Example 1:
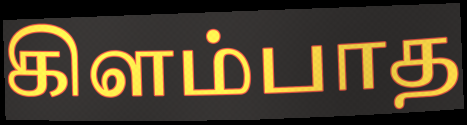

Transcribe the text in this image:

கிளம்பாத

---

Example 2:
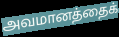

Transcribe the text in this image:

அவமானத்தைக்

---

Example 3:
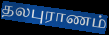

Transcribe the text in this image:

தலபுராணம்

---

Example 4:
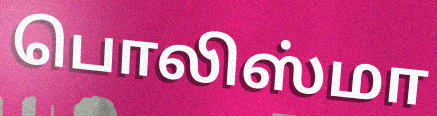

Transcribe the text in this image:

பொலிஸ்மா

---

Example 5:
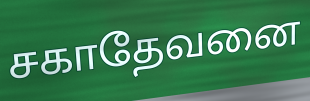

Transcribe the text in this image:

சகாதேவனை